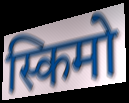
स्किमो